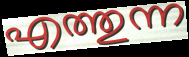
എത്തുന്ന